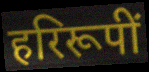
हरिरूपीं